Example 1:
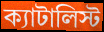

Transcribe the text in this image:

ক্যাটালিস্ট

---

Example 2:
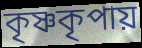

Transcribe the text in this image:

কৃষ্ণকৃপায়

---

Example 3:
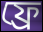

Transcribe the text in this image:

ফ্রে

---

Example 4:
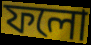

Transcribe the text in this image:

ফলো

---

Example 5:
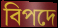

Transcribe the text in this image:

বিপদে